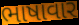
ભાષાવાર